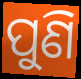
ପୁଣି